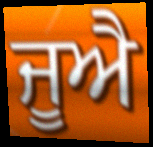
ਜੂਐ